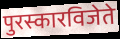
पुरस्कारविजेते